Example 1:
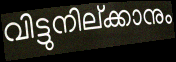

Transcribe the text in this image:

വിട്ടുനില്ക്കാനും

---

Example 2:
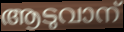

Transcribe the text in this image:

ആടുവാന്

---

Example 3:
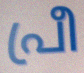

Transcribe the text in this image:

പ്രീ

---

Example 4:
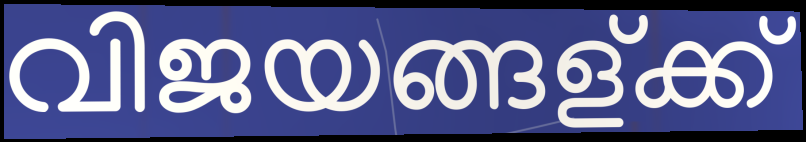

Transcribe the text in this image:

വിജയങ്ങള്ക്ക്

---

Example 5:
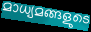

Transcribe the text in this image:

മാധ്യമങ്ങളുടെ